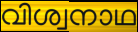
വിശ്വനാഥ